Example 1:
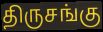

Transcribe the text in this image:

திருசங்கு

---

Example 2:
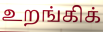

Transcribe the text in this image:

உறங்கிக்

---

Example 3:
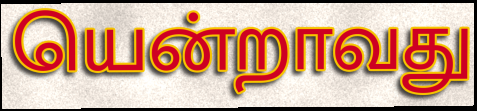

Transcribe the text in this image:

யென்றாவது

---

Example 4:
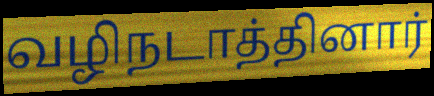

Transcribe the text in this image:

வழிநடாத்தினார்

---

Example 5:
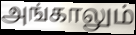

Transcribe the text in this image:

அங்காலும்